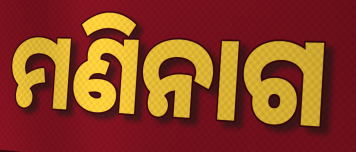
ମଣିନାଗ